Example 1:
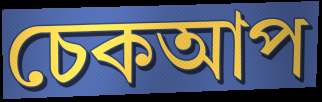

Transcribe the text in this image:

চেকআপ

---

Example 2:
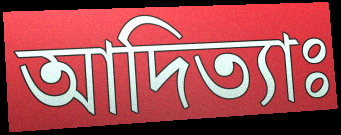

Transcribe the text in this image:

আদিত্যাঃ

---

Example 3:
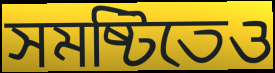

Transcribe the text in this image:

সমষ্টিতেও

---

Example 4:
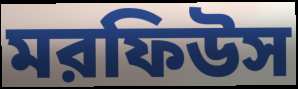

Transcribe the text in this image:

মরফিউস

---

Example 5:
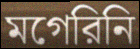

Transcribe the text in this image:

মগেরিনি